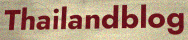
Thailandblog